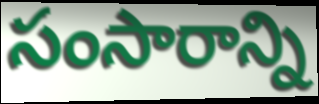
సంసారాన్ని